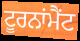
ਟੂਰਨਾਂਮੈਂਟ